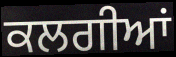
ਕਲਗੀਆਂ